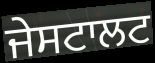
ਜੇਸਟਾਲਟ